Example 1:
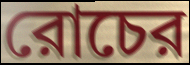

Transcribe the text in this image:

রোচের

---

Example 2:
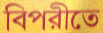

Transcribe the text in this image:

বিপরীতে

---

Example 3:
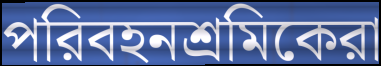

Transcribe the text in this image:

পরিবহনশ্রমিকেরা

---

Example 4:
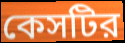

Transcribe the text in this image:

কেসটির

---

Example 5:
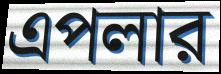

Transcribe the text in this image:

এপলার